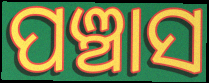
ପଞ୍ଚାସ